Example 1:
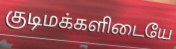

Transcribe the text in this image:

குடிமக்களிடையே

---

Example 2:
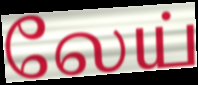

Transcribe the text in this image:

லேய்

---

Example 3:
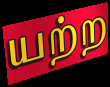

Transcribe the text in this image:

யற்ற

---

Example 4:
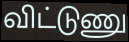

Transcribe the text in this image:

விட்டுணு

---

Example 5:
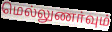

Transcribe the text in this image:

மெல்லுணர்வும்